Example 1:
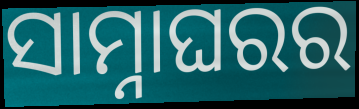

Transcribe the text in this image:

ସାମ୍ନାଘରର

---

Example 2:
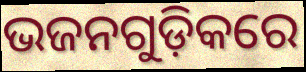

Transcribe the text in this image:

ଭଜନଗୁଡ଼ିକରେ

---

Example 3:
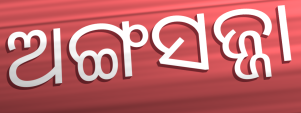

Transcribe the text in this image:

ଅଙ୍ଗସଜ୍ଜା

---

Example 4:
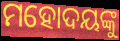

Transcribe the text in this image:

ମହୋଦୟଙ୍କୁ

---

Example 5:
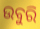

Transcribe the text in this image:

ଉବୁରି